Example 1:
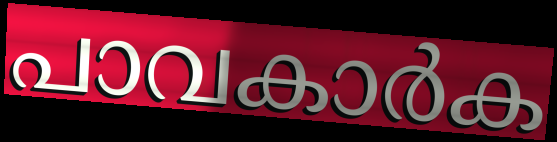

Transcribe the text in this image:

പാവകാർക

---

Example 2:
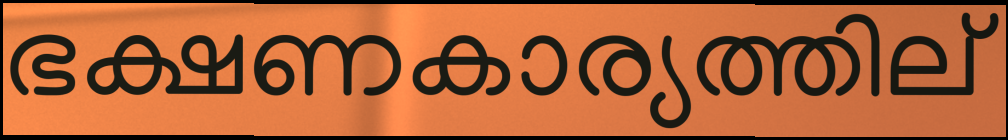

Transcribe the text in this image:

ഭക്ഷണകാര്യത്തില്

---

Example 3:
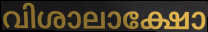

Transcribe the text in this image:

വിശാലാക്ഷോ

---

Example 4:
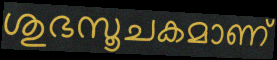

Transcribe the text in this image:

ശുഭസൂചകമാണ്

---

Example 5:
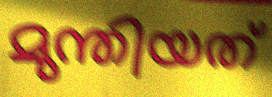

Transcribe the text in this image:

മുന്തിയത്